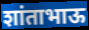
शांताभाऊ